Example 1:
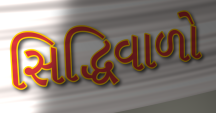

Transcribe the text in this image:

સિદ્ધિવાળો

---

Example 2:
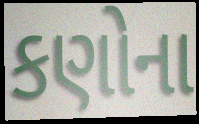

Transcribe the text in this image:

કણોના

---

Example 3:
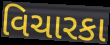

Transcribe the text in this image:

વિચારકા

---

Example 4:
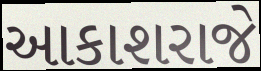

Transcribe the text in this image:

આકાશરાજે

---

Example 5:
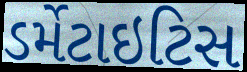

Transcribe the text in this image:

ડર્મેટાઇટિસ